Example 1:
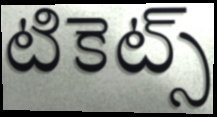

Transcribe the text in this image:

టికెట్స్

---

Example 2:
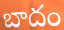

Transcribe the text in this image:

బాదం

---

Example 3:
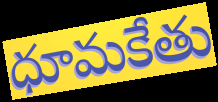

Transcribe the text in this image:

ధూమకేతు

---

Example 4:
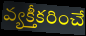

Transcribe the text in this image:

వ్యక్తీకరించే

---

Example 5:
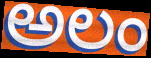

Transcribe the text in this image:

అలం